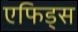
एफिड्स